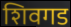
शिवगड